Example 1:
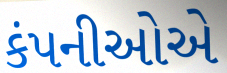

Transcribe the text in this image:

કંપનીઓએ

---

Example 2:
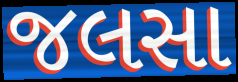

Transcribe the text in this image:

જલસા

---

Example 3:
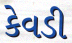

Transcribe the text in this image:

કેવડી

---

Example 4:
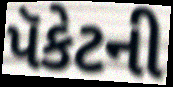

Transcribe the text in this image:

પૅકેટની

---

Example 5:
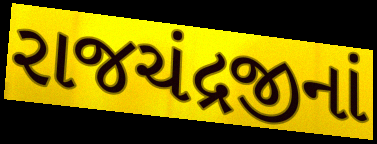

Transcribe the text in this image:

રાજચંદ્રજીનાં